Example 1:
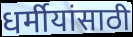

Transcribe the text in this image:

धर्मीयांसाठी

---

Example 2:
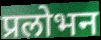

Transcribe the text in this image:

प्रलोभन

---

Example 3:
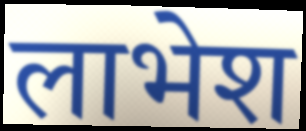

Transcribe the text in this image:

लाभेश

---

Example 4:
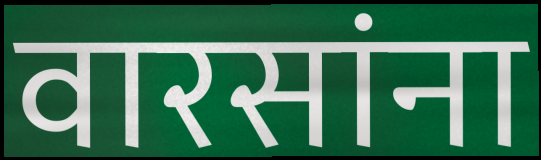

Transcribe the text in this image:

वारसांना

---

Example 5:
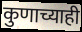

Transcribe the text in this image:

कुणाच्याही